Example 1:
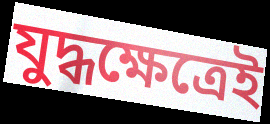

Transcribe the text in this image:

যুদ্ধক্ষেত্রেই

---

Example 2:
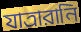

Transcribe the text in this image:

যাত্রারানি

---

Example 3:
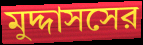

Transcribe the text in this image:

মুদ্দাসসের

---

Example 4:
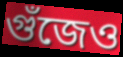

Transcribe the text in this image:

গুঁজেও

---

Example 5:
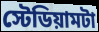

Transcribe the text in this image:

স্টেডিয়ামটা